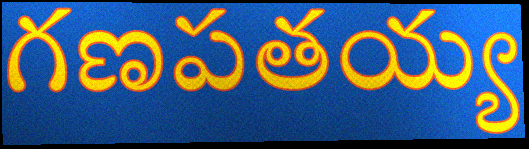
గణపతయ్య